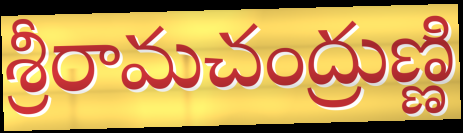
శ్రీరామచంద్రుణ్ణి